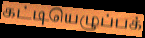
கட்டியெழுப்பக்